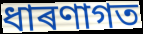
ধাৰণাগত